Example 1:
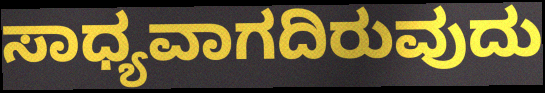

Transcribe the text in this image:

ಸಾಧ್ಯವಾಗದಿರುವುದು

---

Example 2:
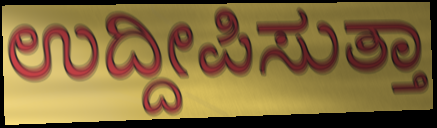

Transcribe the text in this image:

ಉದ್ದೀಪಿಸುತ್ತಾ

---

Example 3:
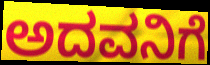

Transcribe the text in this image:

ಅದವನಿಗೆ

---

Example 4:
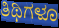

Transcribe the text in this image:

ತಿಥಿಗಳೂ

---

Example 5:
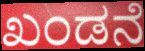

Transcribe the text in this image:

ಖಂಡನೆ